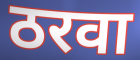
ठरवा